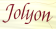
Jolyon